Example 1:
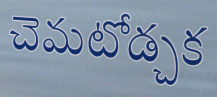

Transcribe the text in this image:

చెమటోడ్చక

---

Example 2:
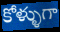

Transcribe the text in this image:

కోళ్ళుగా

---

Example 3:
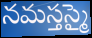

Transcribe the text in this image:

నమస్తస్మై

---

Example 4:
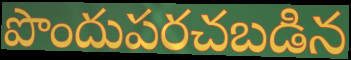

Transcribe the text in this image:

పొందుపరచబడిన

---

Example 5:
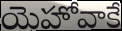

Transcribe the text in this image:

యెహోవాకే